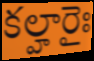
కల్హారైః